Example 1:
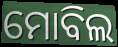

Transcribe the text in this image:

ମୋବିଲ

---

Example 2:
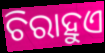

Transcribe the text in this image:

ଚିରାହୁଏ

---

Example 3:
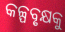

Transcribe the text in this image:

କଳ୍ପବୃକ୍ଷକୁ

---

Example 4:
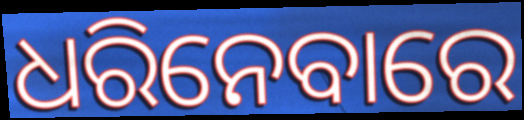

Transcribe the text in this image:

ଧରିନେବାରେ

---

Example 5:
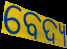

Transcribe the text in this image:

ବେଦ୍ୟ